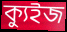
ক্যুইজ